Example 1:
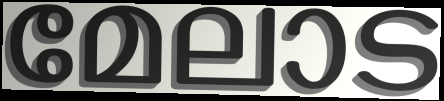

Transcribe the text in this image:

മേലാട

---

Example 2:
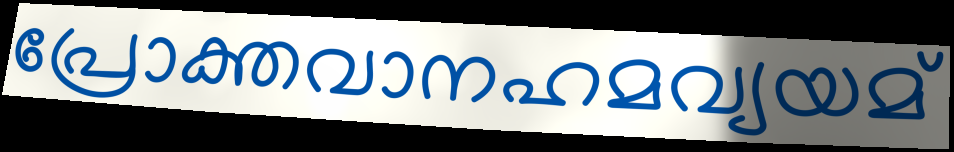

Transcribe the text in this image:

പ്രോക്തവാനഹമവ്യയമ്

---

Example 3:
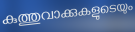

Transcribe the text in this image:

കുത്തുവാക്കുകളുടെയും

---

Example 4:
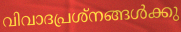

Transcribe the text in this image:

വിവാദപ്രശ്നങ്ങൾക്കു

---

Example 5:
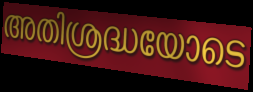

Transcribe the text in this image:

അതിശ്രദ്ധയോടെ